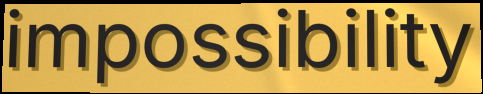
impossibility